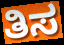
ತಿಸ